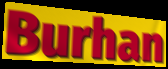
Burhan